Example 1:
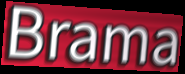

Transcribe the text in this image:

Brama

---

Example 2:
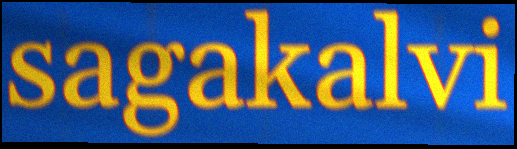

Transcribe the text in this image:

sagakalvi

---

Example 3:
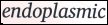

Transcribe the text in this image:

endoplasmic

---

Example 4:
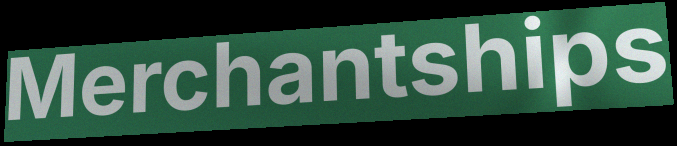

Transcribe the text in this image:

Merchantships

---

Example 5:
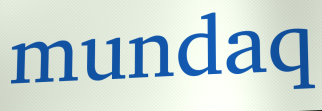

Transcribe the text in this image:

mundaq